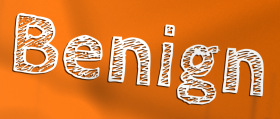
Benign